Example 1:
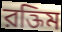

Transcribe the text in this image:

রক্তিম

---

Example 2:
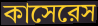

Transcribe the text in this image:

কাসেরেস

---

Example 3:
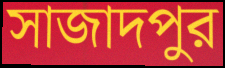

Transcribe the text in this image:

সাজাদপুর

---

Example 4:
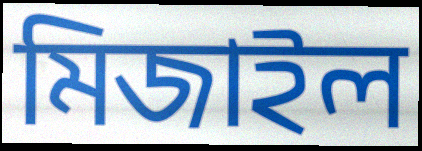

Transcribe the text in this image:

মিজাইল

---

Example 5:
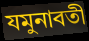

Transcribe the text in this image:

যমুনাবতী